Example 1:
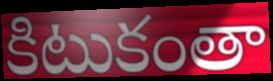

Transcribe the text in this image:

కిటుకంతా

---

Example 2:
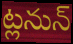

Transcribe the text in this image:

ట్లనున్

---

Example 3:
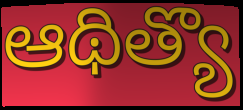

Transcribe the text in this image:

ఆథిత్యొ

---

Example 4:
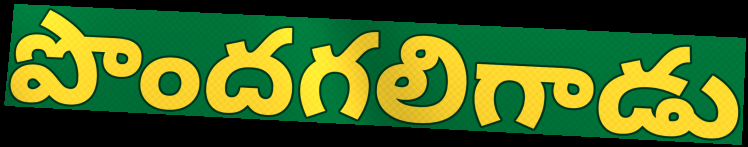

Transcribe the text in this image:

పొందగలిగాడు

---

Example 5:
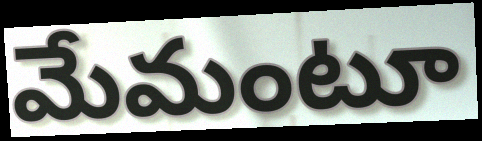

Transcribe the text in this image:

మేమంటూ